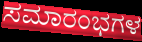
ಸಮಾರಂಭಗಳ